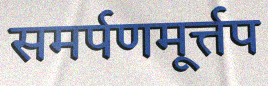
समर्पणमूर्त्तप